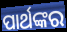
ପାର୍ଥଙ୍କର